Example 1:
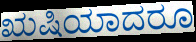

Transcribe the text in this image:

ಋಷಿಯಾದರೂ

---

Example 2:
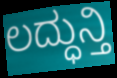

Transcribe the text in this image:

ಲದ್ಧುನ್ತಿ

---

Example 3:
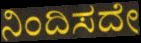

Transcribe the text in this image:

ನಿಂದಿಸದೇ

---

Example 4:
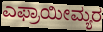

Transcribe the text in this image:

ಎಫ್ರಾಯೀಮ್ಯರ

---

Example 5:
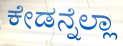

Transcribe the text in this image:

ಕೇಡನ್ನೆಲ್ಲಾ